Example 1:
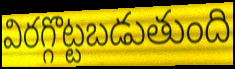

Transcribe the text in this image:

విరగ్గొట్టబడుతుంది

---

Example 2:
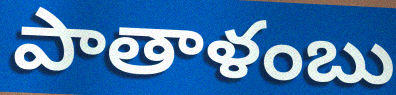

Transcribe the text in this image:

పాతాళంబు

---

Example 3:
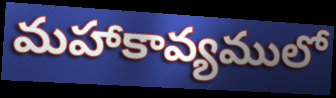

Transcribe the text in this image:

మహాకావ్యములో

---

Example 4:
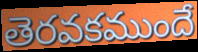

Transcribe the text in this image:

తెరవకముందే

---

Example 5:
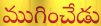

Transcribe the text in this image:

ముగించేడు